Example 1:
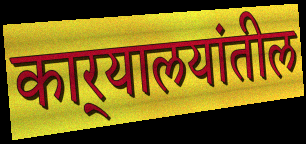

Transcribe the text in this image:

कार्यालयांतील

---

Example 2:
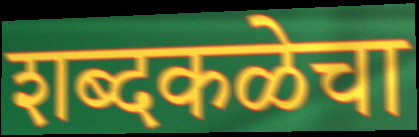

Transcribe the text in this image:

शब्दकळेचा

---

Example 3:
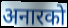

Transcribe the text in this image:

अनारको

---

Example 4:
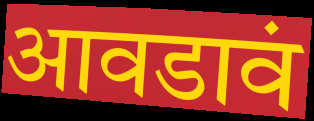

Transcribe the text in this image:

आवडावं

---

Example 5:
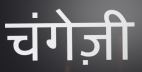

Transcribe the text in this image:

चंगेज़ी